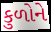
કુળોને